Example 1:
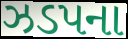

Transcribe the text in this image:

ઝડપના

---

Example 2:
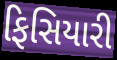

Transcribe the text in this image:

ફિસિયારી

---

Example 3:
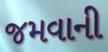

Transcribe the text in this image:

જમવાની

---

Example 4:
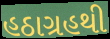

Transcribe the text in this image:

હઠાગ્રહથી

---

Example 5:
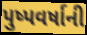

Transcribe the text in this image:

પુષ્પવર્ષાની